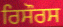
ਰਿਸੌਰਸ